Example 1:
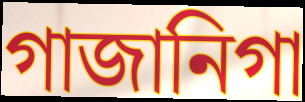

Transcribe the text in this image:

গাজানিগা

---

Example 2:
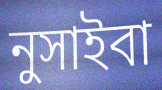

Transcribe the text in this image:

নুসাইবা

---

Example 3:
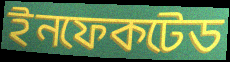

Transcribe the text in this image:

ইনফেকটেড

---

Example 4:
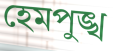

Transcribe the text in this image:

হেমপুঙ্খ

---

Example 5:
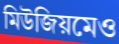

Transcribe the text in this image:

মিউজিয়মেও